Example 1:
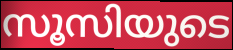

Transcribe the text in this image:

സൂസിയുടെ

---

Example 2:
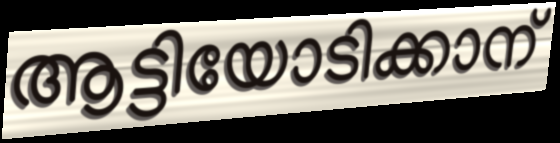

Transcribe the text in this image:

ആട്ടിയോടിക്കാന്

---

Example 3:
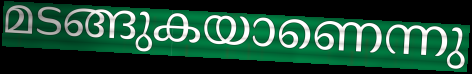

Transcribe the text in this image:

മടങ്ങുകയാണെന്നു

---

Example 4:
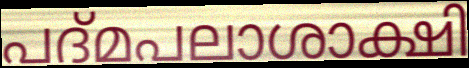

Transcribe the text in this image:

പദ്മപലാശാക്ഷി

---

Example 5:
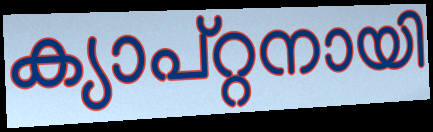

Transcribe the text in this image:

ക്യാപ്റ്റനായി